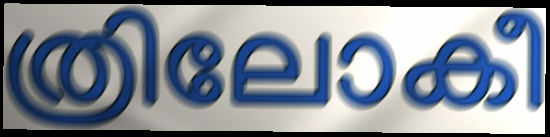
ത്രിലോകീ